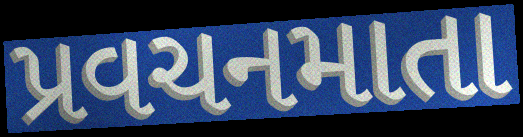
પ્રવચનમાતા